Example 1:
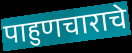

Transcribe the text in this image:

पाहुणचाराचे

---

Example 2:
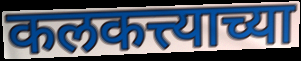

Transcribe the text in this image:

कलकत्त्याच्या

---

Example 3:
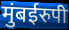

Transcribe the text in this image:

मुंबईरुपी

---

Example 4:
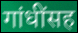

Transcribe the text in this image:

गांधींसह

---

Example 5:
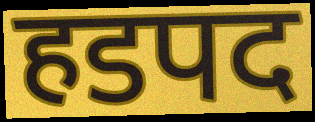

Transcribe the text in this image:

हडपद